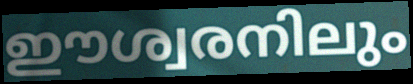
ഈശ്വരനിലും